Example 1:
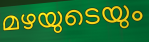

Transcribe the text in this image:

മഴയുടെയും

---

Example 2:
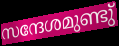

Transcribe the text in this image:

സന്ദേശമുണ്ടു്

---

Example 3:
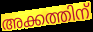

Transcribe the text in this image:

അക്കത്തിന്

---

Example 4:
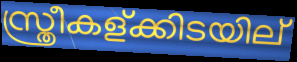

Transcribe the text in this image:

സ്ത്രീകള്ക്കിടയില്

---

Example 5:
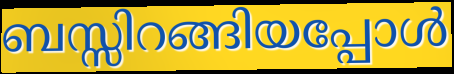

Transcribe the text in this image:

ബസ്സിറങ്ങിയപ്പോൾ